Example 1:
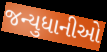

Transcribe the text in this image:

જન્યુધાનીઓ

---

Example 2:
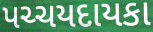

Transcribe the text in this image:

પચ્ચયદાયકા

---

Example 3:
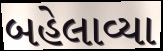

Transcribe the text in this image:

બહેલાવ્યા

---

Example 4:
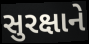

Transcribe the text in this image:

સુરક્ષાને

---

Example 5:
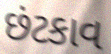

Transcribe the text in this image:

છંટકાવ